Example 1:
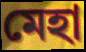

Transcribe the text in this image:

মেহা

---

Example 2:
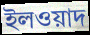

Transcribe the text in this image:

ইলওয়াদ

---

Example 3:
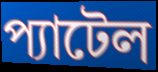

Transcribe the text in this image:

প্যাটেল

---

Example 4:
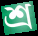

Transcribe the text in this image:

শ্র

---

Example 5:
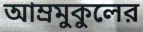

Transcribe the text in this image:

আম্রমুকুলের